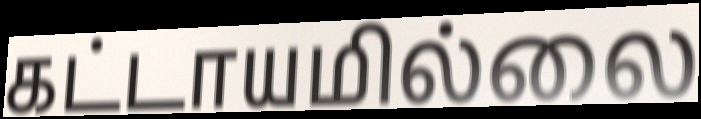
கட்டாயமில்லை